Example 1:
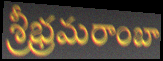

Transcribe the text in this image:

శ్రీభ్రమరాంబా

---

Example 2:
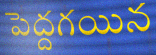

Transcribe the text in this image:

పెద్దగయిన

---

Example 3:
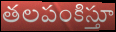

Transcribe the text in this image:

తలపంకిస్తూ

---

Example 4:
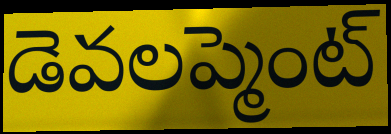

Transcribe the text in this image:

డెవలప్మెంట్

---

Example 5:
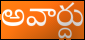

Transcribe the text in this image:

అవార్దు